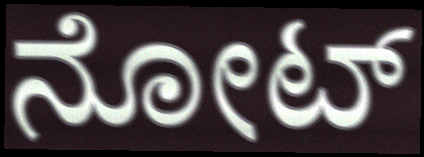
ನೋಟ್